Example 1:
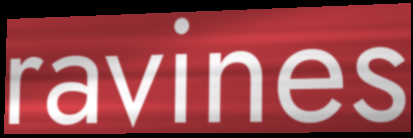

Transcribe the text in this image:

ravines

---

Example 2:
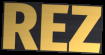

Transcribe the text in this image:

REZ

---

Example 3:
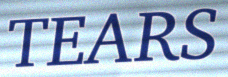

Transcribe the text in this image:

TEARS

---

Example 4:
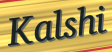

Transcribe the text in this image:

Kalshi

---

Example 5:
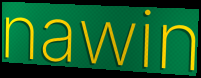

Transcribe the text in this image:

nawin